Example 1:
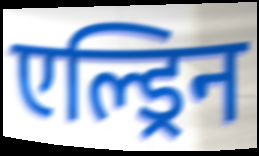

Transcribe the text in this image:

एल्ड्रिन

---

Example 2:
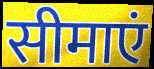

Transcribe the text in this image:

सीमाएं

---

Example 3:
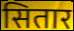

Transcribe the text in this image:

सितार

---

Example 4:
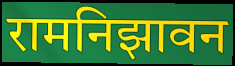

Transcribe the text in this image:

रामनिझावन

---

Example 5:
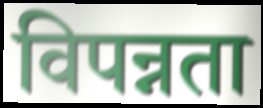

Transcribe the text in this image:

विपन्नता